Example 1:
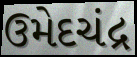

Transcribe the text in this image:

ઉમેદચંદ્ર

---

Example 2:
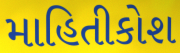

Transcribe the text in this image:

માહિતીકોશ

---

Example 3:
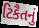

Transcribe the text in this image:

ટિકૈતનું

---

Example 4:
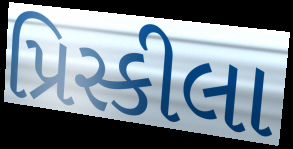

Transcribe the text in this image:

પ્રિસ્કીલા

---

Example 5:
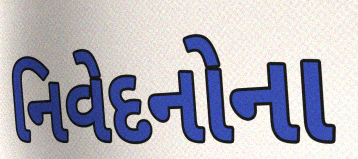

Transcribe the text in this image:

નિવેદનોના